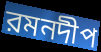
রমনদীপ